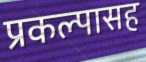
प्रकल्पासह